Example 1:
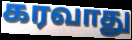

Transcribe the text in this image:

கரவாது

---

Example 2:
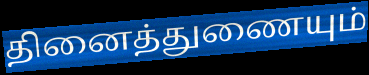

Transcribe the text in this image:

தினைத்துணையும்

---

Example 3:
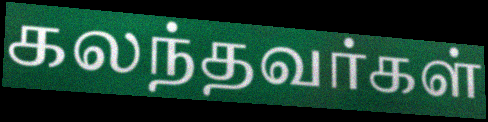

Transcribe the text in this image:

கலந்தவர்கள்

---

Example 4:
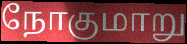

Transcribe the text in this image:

நோகுமாறு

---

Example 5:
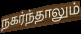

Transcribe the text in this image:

நகர்ந்தாலும்